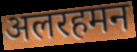
अलरहमन